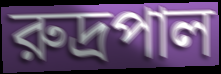
রুদ্রপাল